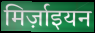
मिर्ज़ाइयन